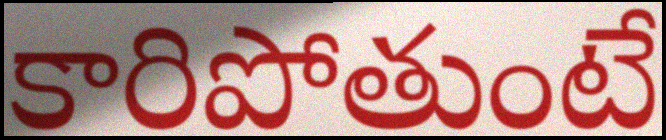
కారిపోతుంటే